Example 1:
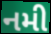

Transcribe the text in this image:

નમી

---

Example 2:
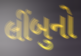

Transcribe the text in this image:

લીંબુનો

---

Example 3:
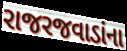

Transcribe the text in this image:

રાજરજવાડાંના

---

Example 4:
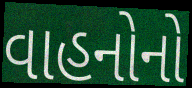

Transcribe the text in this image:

વાહનોનો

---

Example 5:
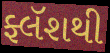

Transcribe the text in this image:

ફ્લૅશથી